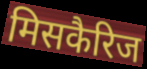
मिसकैरिज